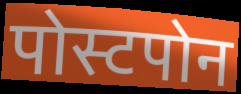
पोस्टपोन